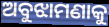
ଅବୁଝାମଣାକୁ